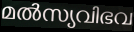
മൽസ്യവിഭവ